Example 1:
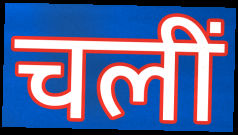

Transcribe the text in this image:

चलीं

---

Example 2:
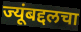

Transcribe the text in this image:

ज्यूंबद्दलचा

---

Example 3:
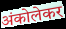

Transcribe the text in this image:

अंकोलेकर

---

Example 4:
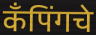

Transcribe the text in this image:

कँपिंगचे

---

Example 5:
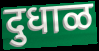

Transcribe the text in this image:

दुधाळ